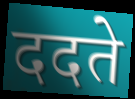
ददते